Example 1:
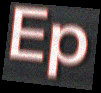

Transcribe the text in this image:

Ep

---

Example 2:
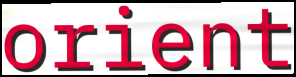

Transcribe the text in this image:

orient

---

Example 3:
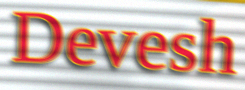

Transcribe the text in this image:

Devesh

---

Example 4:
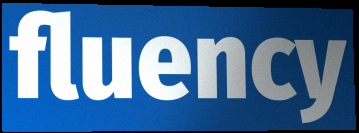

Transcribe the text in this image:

fluency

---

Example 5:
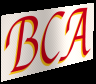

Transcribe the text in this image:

BCA